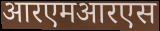
आरएमआरएस